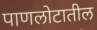
पाणलोटातील